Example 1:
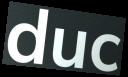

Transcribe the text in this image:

duc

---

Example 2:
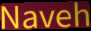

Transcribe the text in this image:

Naveh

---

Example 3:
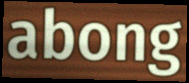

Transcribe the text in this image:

abong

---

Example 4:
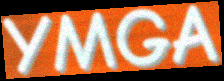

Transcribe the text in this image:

YMGA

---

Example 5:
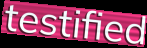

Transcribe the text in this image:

testified